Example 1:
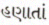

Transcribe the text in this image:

હણાતાં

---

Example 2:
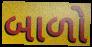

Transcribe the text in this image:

બાળો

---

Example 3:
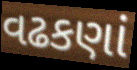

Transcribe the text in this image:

વઢકણાં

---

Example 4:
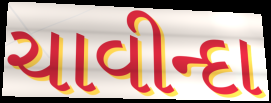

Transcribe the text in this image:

ચાવીન્દા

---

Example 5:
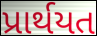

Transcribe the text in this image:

પ્રાર્થયત